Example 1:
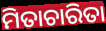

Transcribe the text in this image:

ମିତାଚାରିତା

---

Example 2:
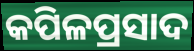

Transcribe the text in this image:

କପିଳପ୍ରସାଦ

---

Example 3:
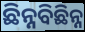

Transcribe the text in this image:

ଛିନ୍ନବିଛିନ୍ନ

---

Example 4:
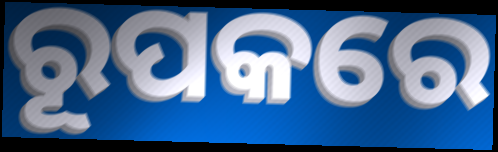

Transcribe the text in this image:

ରୂପକରେ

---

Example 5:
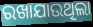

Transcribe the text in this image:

ରଖାଯାଉଥିଲା